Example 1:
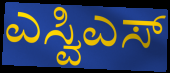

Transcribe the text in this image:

ಎಸ್ವಿಎಸ್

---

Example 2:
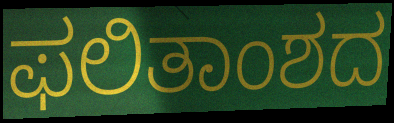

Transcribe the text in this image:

ಫಲಿತಾಂಶದ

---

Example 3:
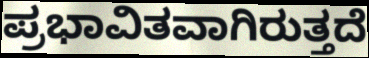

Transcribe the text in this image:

ಪ್ರಭಾವಿತವಾಗಿರುತ್ತದೆ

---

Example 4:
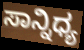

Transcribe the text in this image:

ಸಾನ್ನಿಧ್ಯ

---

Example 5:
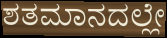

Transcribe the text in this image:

ಶತಮಾನದಲ್ಲೇ